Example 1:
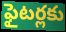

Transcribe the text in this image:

ఫైటర్లకు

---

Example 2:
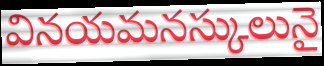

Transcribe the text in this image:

వినయమనస్కులునై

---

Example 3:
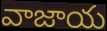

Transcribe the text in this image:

వాజాయ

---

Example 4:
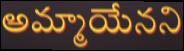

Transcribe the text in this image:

అమ్మాయేనని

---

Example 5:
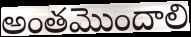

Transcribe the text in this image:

అంతమొందాలి